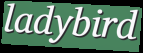
ladybird